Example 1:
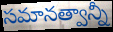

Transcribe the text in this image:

సమానత్వాన్నీ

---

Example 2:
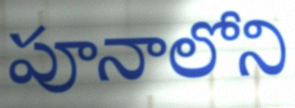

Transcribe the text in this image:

పూనాలోని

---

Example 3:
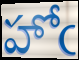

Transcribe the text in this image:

హోఁ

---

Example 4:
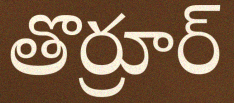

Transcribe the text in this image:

తొర్రూర్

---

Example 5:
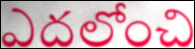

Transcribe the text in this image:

ఎదలోంచి